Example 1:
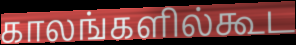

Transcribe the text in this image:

காலங்களில்கூட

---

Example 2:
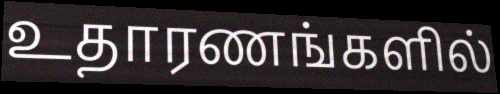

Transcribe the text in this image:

உதாரணங்களில்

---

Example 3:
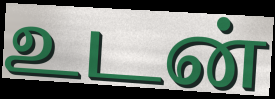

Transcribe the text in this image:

உடன்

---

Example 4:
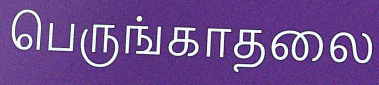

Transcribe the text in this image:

பெருங்காதலை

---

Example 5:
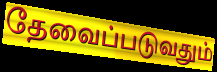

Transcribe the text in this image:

தேவைப்படுவதும்